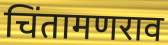
चिंतामणराव